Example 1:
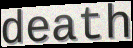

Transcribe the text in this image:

death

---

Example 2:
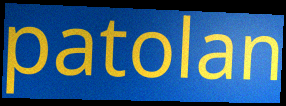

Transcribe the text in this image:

patolan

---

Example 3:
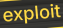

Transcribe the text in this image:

exploit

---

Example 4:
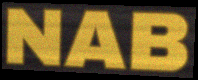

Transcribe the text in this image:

NAB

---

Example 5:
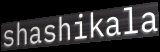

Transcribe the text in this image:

shashikala